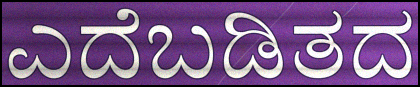
ಎದೆಬಡಿತದ